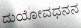
ದುಯೋವಧನನ